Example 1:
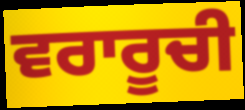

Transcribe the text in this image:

ਵਰਾਰੂਚੀ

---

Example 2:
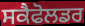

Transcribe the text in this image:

ਸਕੈਫੋਲਡਰ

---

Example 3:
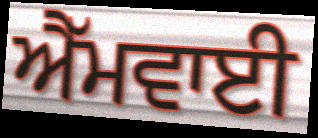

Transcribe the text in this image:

ਐੱਮਵਾਈ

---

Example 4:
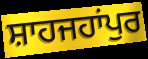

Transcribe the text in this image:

ਸ਼ਾਹਜਹਾਂਪੁਰ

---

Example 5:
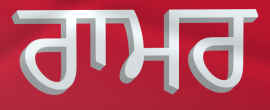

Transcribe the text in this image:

ਰਾਮਰ